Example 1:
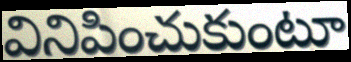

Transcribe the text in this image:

వినిపించుకుంటూ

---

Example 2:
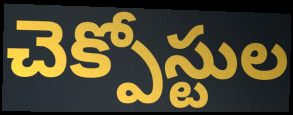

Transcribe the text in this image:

చెక్పోస్టుల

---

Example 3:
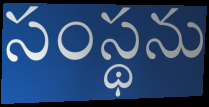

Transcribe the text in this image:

సంస్థను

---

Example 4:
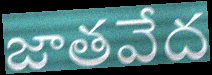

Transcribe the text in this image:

జాతవేద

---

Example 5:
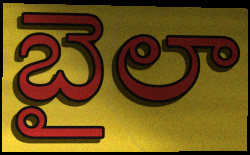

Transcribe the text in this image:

బైలా